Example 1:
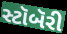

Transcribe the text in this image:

સ્ટૉબૅરી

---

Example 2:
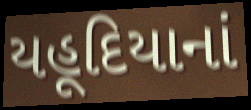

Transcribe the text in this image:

યહૂદિયાનાં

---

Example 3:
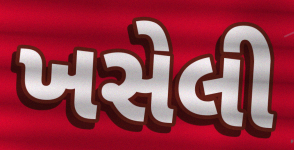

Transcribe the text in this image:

ખસેલી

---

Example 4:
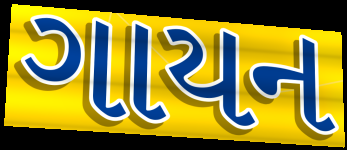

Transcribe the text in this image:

ગાયન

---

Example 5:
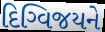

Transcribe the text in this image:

દિગ્વિજયને